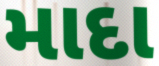
માદા